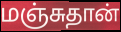
மஞ்சுதான்